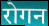
रोगन